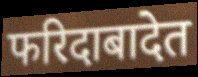
फरिदाबादेत